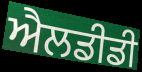
ਐਲਡੀਡੀ